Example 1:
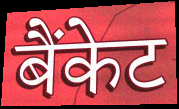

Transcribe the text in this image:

बैंकेट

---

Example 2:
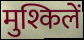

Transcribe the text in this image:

मुश्किलें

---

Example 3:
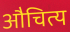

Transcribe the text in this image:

औचित्‍य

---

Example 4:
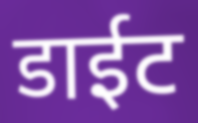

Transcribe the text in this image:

डाईट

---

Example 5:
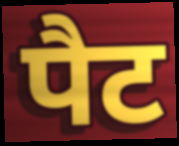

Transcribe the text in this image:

पैट